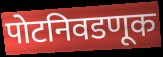
पोटनिवडणूक